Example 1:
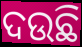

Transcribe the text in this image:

ଦଉଛି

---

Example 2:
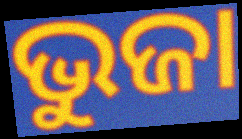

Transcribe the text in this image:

ଭୁଜା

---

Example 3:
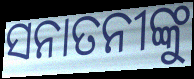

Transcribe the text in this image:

ସନାତନୀଙ୍କୁ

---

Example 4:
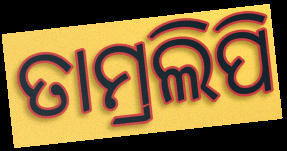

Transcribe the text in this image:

ତାମ୍ରଲିପି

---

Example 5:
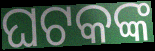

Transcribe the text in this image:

ଘଟକଙ୍କ